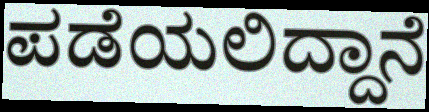
ಪಡೆಯಲಿದ್ದಾನೆ